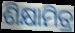
ଶିକ୍ଷାମିତ୍ର